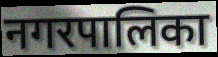
नगरपालिका